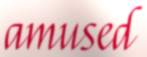
amused